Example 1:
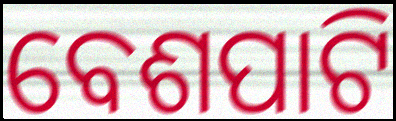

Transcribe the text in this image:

ବେଶପାଟି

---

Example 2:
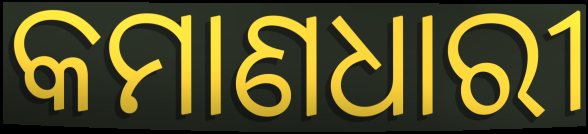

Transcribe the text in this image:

କମାଣଧାରୀ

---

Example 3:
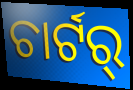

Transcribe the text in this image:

ଚାର୍ଟର୍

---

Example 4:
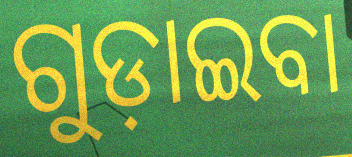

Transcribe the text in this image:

ଗୁଡ଼ାଇବା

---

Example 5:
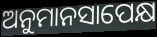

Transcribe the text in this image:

ଅନୁମାନସାପେକ୍ଷ